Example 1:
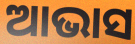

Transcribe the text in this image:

ଆଭାସ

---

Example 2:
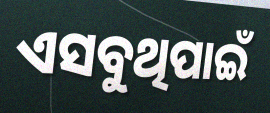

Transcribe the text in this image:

ଏସବୁଥିପାଇଁ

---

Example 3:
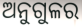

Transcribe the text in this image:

ଅନୁଗୁଳର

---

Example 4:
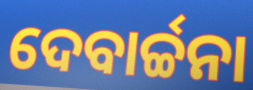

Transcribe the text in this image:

ଦେବାର୍ଚ୍ଚନା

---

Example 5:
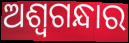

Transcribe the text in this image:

ଅଶ୍ୱଗନ୍ଧାର